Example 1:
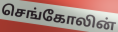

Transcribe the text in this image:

செங்கோலின்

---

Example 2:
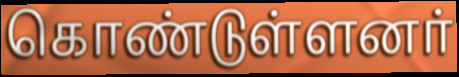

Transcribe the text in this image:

கொண்டுள்ளனர்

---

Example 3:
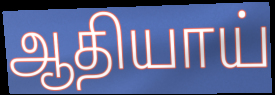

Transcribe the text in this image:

ஆதியாய்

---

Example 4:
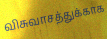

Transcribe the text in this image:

விசுவாசத்துக்காக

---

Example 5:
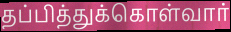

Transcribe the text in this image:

தப்பித்துக்கொள்வார்